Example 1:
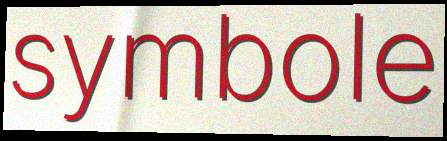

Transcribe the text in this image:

symbole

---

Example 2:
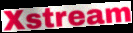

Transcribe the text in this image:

Xstream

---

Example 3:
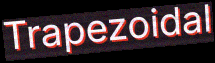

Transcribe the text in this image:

Trapezoidal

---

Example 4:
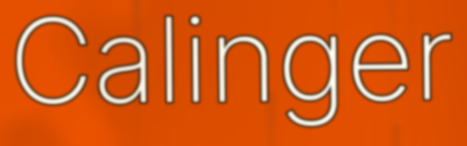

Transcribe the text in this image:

Calinger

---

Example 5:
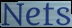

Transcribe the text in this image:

Nets